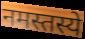
नमस्तस्ये